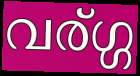
വര്ഗ്ഗ